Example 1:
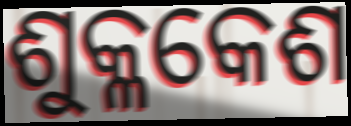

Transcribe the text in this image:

ଶୁକ୍ଳକେଶ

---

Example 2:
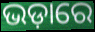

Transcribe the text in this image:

ଭଡ଼ାରେ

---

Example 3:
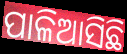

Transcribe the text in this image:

ପାଳିଆସିଛି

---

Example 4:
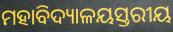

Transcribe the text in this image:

ମହାବିଦ୍ୟାଳୟସ୍ତରୀୟ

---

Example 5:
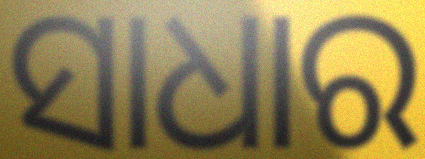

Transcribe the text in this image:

ସାଧାର